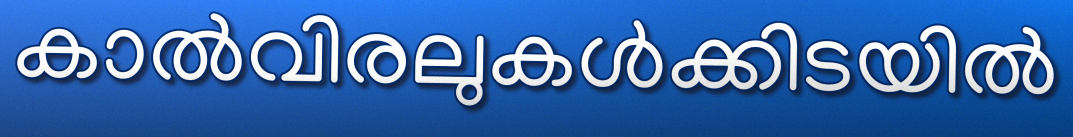
കാൽവിരലുകൾക്കിടയിൽ